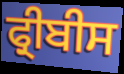
ਫ੍ਰੀਬੀਸ